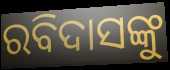
ରବିଦାସଙ୍କୁ